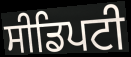
ਸੀਡਿਪਟੀ